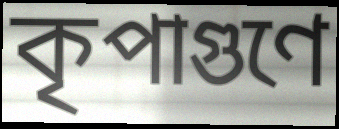
কৃপাগুণে